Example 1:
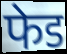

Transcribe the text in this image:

फेड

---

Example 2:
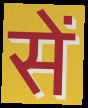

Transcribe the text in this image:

सें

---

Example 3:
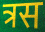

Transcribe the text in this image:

त्रस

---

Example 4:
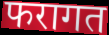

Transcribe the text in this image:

फरागत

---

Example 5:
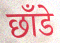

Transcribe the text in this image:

छाँडे